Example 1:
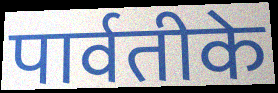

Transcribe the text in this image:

पार्वतीके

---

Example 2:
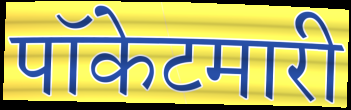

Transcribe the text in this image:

पॉकेटमारी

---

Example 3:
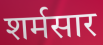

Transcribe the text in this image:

शर्मसार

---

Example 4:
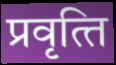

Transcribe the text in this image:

प्रवृत्‍ति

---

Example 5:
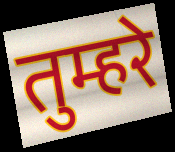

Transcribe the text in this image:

तुम्हरे